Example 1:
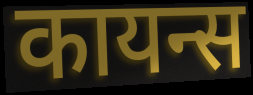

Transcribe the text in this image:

कायन्स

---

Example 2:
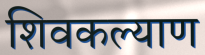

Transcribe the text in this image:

शिवकल्याण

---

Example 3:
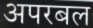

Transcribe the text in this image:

अपरबल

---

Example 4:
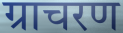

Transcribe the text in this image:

ग्राचरण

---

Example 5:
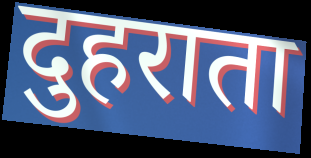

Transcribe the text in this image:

दुहराता